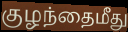
குழந்தைமீது